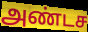
அண்டச